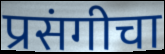
प्रसंगीचा